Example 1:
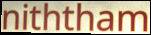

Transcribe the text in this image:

niththam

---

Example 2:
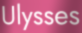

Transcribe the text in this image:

Ulysses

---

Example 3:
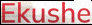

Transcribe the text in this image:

Ekushe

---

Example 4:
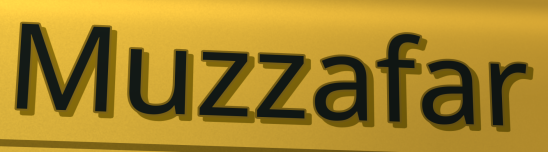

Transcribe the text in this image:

Muzzafar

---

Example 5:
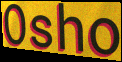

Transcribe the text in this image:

Osho